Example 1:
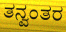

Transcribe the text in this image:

ತನ್ವಂತರ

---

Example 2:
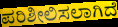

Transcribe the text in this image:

ಪರಿಶೀಲಿಸಲಾಗಿದೆ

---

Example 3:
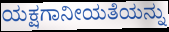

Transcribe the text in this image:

ಯಕ್ಷಗಾನೀಯತೆಯನ್ನು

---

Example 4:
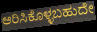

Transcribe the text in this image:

ಆರಿಸಿಕೊಳ್ಳಬಹುದೇ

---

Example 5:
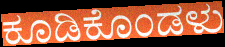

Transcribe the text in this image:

ಕೂಡಿಕೊಂಡಳು